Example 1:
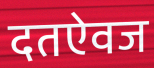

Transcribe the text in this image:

दतऐवज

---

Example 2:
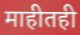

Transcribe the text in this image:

माहीतही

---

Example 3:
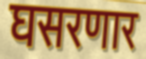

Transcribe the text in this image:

घसरणार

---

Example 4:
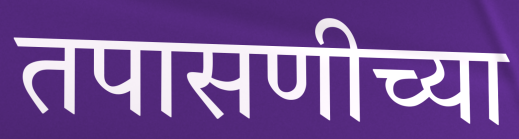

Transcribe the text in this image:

तपासणीच्या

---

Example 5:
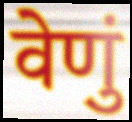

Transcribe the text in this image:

वेणुं